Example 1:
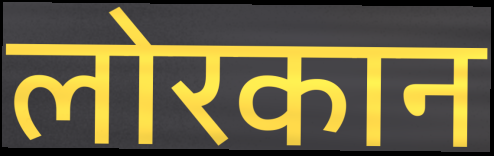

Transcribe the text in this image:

लोरकान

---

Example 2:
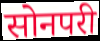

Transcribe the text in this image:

सोनपरी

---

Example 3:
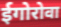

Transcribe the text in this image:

ईगोरोवा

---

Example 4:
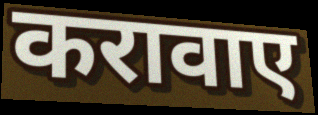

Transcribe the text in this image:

करावाए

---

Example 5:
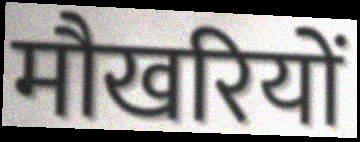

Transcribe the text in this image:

मौखरियों